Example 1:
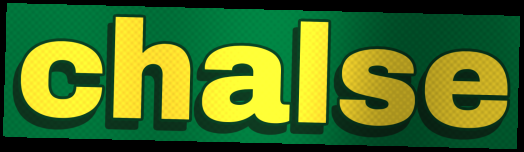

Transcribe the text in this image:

chalse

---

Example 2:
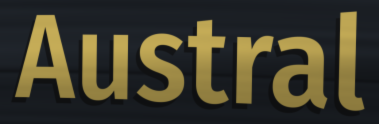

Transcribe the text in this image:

Austral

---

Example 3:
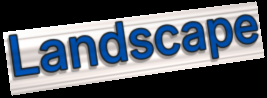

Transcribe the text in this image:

Landscape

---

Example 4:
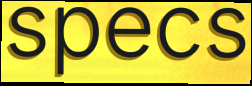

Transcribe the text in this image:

specs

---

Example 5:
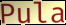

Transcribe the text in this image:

Pula